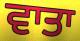
ਵਾਤਾ